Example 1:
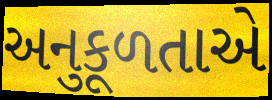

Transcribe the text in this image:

અનુકૂળતાએ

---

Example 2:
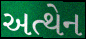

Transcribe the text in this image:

અત્થેન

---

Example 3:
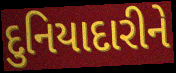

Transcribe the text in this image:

દુનિયાદારીને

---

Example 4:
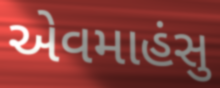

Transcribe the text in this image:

એવમાહંસુ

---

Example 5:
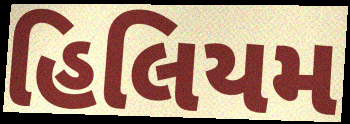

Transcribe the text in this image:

હિલિયમ